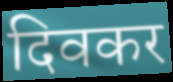
दिवकर